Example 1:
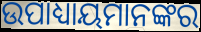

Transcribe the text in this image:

ଉପାଧ୍ୟାୟମାନଙ୍କର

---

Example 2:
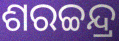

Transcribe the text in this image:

ଶରଚ୍ଚନ୍ଦ୍ର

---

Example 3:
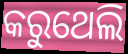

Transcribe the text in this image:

କରୁଥେଲି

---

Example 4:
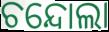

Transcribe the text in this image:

ଚନ୍ଦୋଲା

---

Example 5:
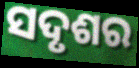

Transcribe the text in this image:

ସଦୃଶର